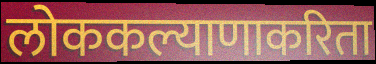
लोककल्याणाकरिता